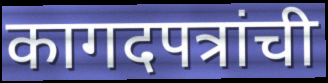
कागदपत्रांची